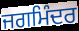
ਜਗਮਿੰਦਰ